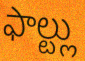
ఫాల్ట్లు